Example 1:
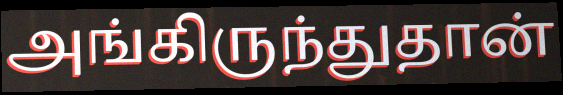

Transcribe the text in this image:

அங்கிருந்துதான்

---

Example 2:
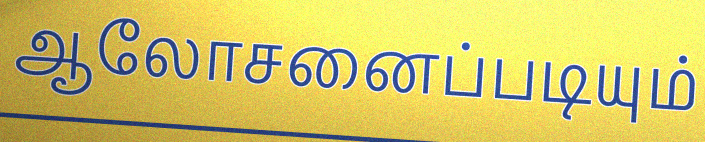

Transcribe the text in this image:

ஆலோசனைப்படியும்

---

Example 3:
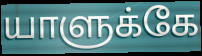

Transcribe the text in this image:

யாளுக்கே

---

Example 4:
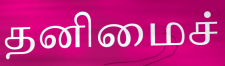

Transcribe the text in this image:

தனிமைச்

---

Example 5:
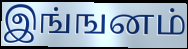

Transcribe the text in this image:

இங்ஙனம்